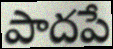
పాదపే